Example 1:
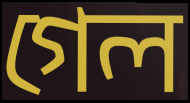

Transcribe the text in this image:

গেল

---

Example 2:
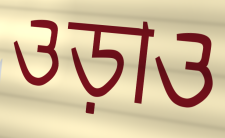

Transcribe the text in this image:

ওড়াও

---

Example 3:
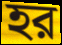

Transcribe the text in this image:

হর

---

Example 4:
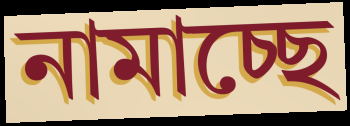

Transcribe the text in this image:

নামাচ্ছে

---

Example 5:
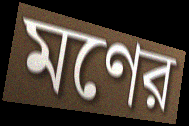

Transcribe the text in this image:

মণের